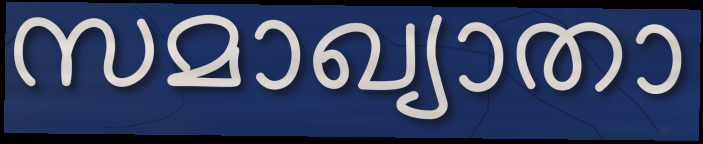
സമാഖ്യാതാ